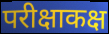
परीक्षाकक्ष